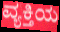
ವ್ಯಕ್ತಿಯ